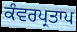
ਕੰਵਰਪ੍ਰਤਾਪ